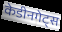
केडीनगेट्स